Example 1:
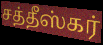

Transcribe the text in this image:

சத்தீஸ்கர்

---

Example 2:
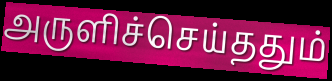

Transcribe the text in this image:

அருளிச்செய்ததும்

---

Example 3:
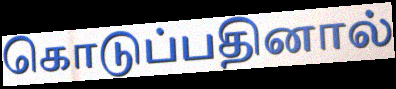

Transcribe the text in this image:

கொடுப்பதினால்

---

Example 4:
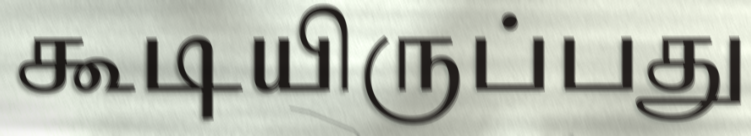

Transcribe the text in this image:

கூடியிருப்பது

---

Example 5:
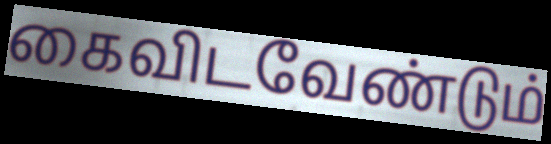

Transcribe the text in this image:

கைவிடவேண்டும்